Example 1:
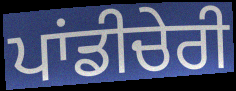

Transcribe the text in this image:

ਪਾਂਡੀਚੇਰੀ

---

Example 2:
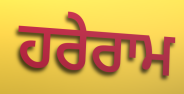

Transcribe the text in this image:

ਹਰੇਰਾਮ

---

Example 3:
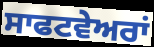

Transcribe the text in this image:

ਸਾਫਟਵੇਅਰਾਂ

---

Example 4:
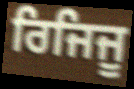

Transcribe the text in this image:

ਰਿਜਿਜੂ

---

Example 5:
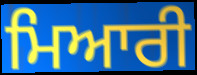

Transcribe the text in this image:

ਮਿਆਰੀ